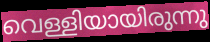
വെള്ളിയായിരുന്നു